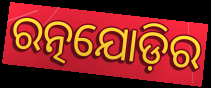
ରତ୍ନଯୋଡ଼ିର